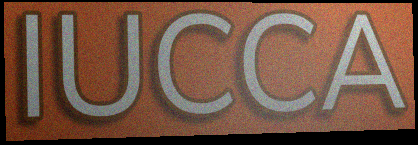
IUCCA